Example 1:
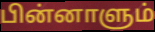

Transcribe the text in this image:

பின்னாளும்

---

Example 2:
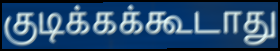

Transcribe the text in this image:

குடிக்கக்கூடாது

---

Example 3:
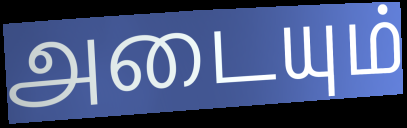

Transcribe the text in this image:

அடையும்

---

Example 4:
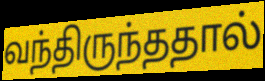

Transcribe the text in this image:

வந்திருந்ததால்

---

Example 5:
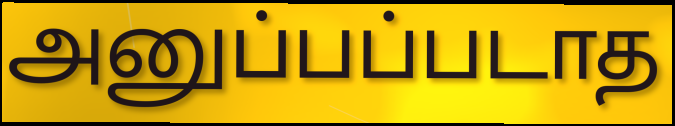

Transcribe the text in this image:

அனுப்பப்படாத